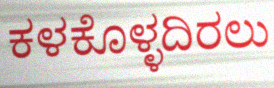
ಕಳಕೊಳ್ಳದಿರಲು